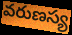
వరుణస్య